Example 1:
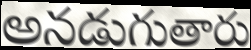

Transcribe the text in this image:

అనడుగుతారు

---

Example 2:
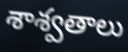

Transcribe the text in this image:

శాశ్వతాలు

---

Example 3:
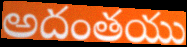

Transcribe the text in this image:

అదంతయు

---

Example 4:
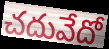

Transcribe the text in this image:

చదువేదో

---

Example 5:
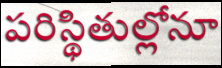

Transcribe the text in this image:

పరిస్థితుల్లోనూ